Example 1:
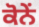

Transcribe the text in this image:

ਕੋਨੇਂ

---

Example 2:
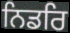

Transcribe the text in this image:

ਨਿਡਰਿ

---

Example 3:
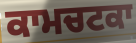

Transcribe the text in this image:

ਕਾਮਚਟਕਾ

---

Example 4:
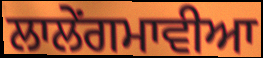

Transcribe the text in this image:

ਲਾਲੇਂਗਮਾਵੀਆ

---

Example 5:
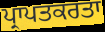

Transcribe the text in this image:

ਪ੍ਰਾਪਤਕਰਤਾ